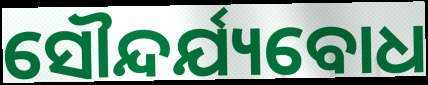
ସୌନ୍ଦର୍ଯ୍ୟବୋଧ